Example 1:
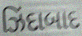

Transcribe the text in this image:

ઝિંદાબાદ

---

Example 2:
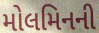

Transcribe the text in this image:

મોલમિનની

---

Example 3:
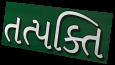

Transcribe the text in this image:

તત્પક્તિ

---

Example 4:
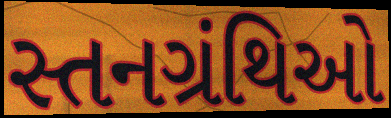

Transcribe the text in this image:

સ્તનગ્રંથિઓ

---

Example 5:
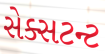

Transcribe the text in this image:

સેક્સટન્ટ